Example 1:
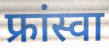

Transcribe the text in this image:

फ्रांस्वा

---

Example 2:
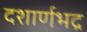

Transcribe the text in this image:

दशार्णभद्र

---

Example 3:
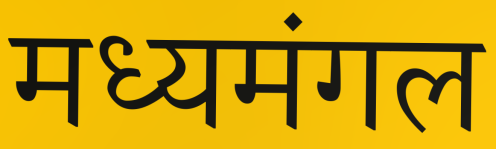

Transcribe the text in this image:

मध्यमंगल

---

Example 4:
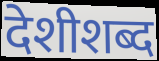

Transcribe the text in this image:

देशीशब्द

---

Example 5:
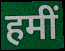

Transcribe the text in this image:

हमीं